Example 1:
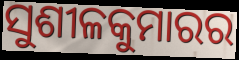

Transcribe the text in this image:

ସୁଶୀଳକୁମାରର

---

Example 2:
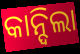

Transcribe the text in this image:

କାନ୍ଦିଲା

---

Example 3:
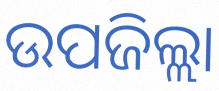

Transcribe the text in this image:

ଉପଜିଲ୍ଲା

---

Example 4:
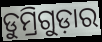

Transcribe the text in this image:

ଡୁମ୍ରିଗୁଡ଼ାର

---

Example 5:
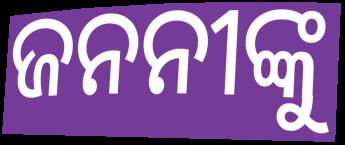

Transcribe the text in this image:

ଜନନୀଙ୍କୁ